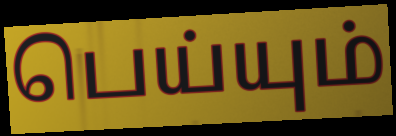
பெய்யும்